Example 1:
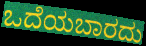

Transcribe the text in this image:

ಒದೆಯಬಾರದು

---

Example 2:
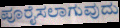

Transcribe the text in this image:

ಪೂರೈಸಲಾಗುವುದು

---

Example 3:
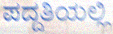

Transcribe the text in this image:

ಪದ್ದತಿಯಲ್ಲಿ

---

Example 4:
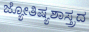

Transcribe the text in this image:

ಜ್ಯೋತಿಷ್ಯಶಾಸ್ತ್ರದ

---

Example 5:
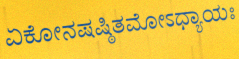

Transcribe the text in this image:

ಏಕೋನಷಷ್ಠಿತಮೋಽಧ್ಯಾಯಃ